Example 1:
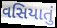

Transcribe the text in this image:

વસિયાતું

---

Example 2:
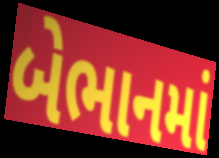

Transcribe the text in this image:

બેભાનમાં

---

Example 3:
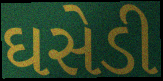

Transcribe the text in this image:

ઘસેડી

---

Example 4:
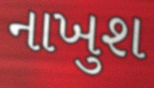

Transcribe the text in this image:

નાખુશ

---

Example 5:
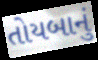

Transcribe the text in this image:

તોયબાનું